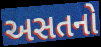
અસતનો